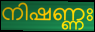
നിഷണ്ണഃ